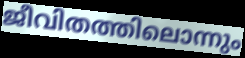
ജീവിതത്തിലൊന്നും